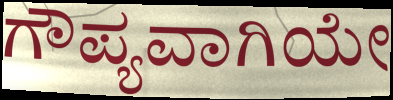
ಗೌಪ್ಯವಾಗಿಯೇ